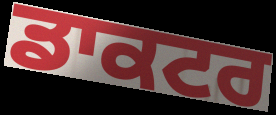
ਡਾਕਟਰ